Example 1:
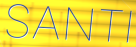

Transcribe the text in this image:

SANTI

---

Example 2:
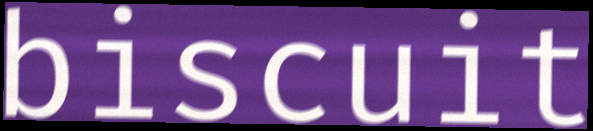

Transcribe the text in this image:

biscuit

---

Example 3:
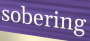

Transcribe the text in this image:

sobering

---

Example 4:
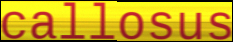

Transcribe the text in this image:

callosus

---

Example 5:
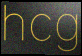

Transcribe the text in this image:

hcg